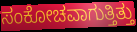
ಸಂಕೋಚವಾಗುತ್ತಿತ್ತು